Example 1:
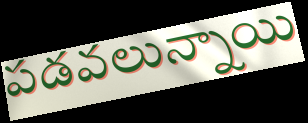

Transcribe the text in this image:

పడవలున్నాయి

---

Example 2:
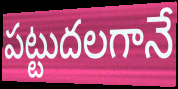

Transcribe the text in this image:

పట్టుదలగానే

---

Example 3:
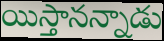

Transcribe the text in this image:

యిస్తానన్నాడు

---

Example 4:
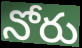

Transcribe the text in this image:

నోరు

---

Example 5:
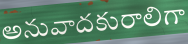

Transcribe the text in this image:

అనువాదకురాలిగా